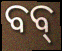
ବବ୍